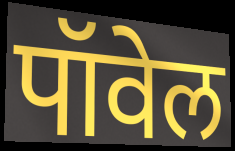
पॉवेल